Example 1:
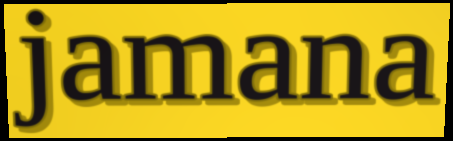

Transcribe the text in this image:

jamana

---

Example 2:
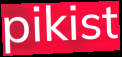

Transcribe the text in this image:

pikist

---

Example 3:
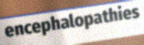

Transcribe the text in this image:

encephalopathies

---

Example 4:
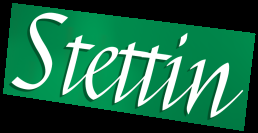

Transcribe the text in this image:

Stettin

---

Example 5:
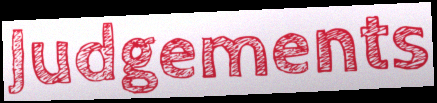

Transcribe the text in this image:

Judgements